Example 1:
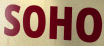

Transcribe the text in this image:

SOHO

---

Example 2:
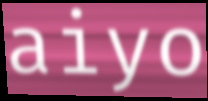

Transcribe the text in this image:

aiyo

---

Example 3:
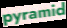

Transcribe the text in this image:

pyramid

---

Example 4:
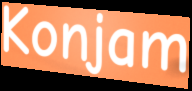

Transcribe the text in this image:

Konjam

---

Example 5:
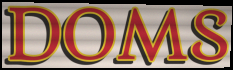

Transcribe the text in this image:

DOMS